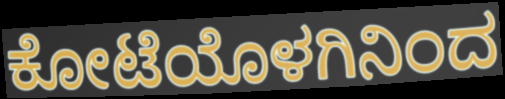
ಕೋಟೆಯೊಳಗಿನಿಂದ